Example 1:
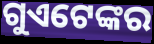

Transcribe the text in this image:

ଗୁଏଟେଙ୍କର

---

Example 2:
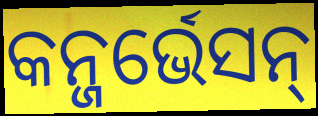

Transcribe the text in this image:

କନ୍ଜର୍ଭେସନ୍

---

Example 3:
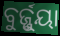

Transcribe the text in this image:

ବୁର୍ଜ୍ଜୁୟା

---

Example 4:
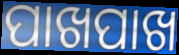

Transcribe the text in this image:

ପାଖପାଖ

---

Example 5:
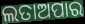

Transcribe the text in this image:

ଲତାଅପାର